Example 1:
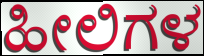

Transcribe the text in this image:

ಹೀಲಿಗಳ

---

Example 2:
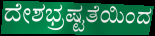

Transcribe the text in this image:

ದೇಶಭ್ರಷ್ಟತೆಯಿಂದ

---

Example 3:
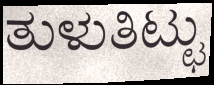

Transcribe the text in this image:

ತುಳುತಿಟ್ಟು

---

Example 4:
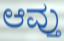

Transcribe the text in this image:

ಆವ್ತು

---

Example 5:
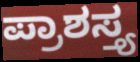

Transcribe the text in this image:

ಪ್ರಾಶಸ್ತ್ಯ